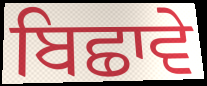
ਬਿਛਾਵੇ